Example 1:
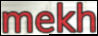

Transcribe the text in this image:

mekh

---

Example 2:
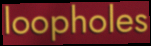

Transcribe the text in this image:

loopholes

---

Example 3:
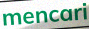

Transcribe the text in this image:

mencari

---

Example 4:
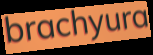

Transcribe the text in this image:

brachyura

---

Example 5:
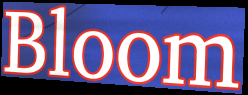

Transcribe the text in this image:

Bloom